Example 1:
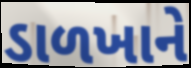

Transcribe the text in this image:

ડાળખાને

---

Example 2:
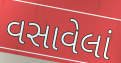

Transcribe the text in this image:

વસાવેલાં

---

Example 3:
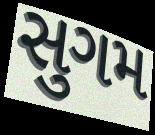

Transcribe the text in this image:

સુગમ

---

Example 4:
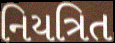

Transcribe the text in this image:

નિયત્રિત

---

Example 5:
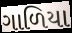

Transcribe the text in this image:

ગાળિયા